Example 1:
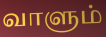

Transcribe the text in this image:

வாளும்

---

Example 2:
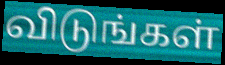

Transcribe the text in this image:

விடுங்கள்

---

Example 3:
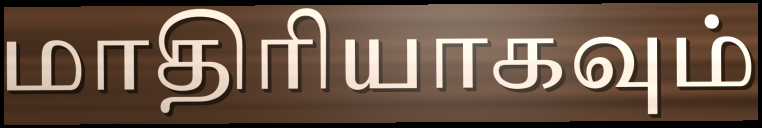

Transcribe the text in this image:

மாதிரியாகவும்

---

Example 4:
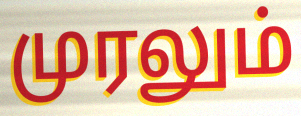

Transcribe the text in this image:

முரலும்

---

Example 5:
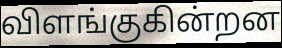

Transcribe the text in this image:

விளங்குகின்றன